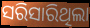
ସରିସାରିଥିଲା